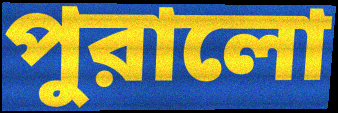
পুরালো